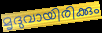
മൃദുവായിരിക്കും